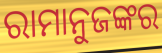
ରାମାନୁଜଙ୍କର